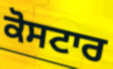
ਕੋਸਟਾਰ